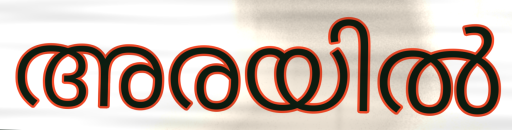
അരയിൽ